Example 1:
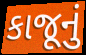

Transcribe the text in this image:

કાજૂનું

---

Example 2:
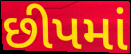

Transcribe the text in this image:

છીપમાં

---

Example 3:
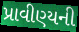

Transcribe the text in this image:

પ્રાવીણ્યની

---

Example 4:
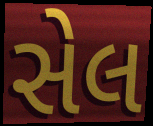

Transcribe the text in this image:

સેલ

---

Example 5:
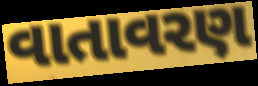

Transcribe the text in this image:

વાતાવરણ